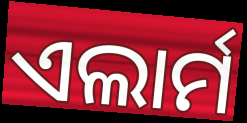
ଏଲାର୍ମ